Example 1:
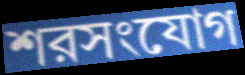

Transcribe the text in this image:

শরসংযোগ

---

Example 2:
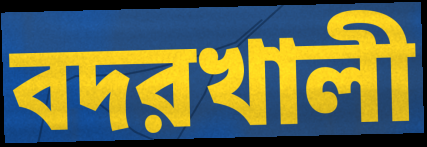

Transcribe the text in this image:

বদরখালী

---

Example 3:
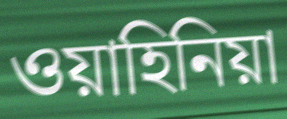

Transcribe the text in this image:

ওয়াহিনিয়া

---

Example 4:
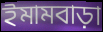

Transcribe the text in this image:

ইমামবাড়া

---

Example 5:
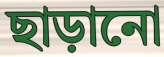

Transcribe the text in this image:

ছাড়ানো